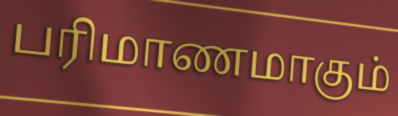
பரிமாணமாகும்